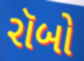
રૉબો